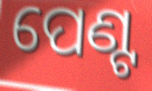
ପେଣ୍ଟ